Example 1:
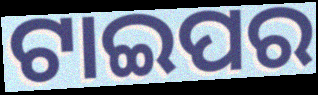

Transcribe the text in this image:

ଟାଇପର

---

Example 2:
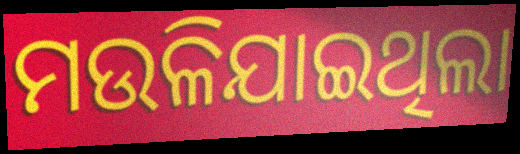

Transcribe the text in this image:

ମଉଳିଯାଇଥିଲା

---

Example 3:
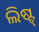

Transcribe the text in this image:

ଲିଷ୍ଟ୍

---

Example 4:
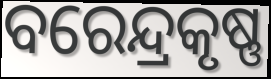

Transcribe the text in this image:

ବରେନ୍ଦ୍ରକୃଷ୍ଣ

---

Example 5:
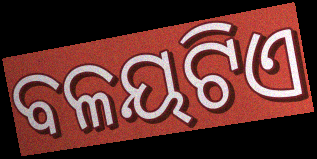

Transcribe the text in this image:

ବଳୟଟିଏ